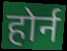
होर्न